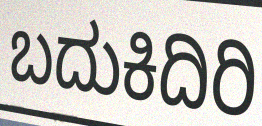
ಬದುಕಿದಿರಿ